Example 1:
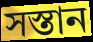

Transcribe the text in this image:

সস্তান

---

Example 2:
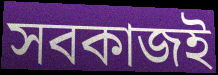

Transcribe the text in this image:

সবকাজই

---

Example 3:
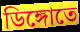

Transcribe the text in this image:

ডিঙ্গোতে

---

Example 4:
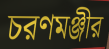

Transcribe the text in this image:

চরণমঞ্জীর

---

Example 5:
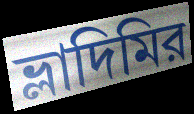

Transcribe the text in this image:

ভ্লাদিমির